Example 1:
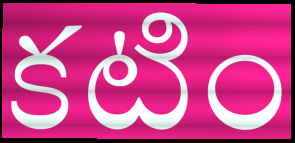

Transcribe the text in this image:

కటిం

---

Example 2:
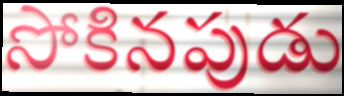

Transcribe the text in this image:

సోకినపుడు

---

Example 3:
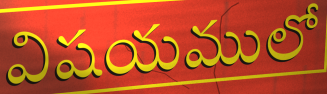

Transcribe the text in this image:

విషయములో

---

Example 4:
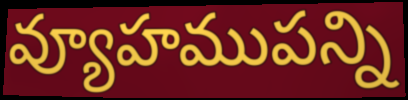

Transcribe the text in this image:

వ్యూహముపన్ని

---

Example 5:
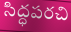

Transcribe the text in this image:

సిద్ధపరచి